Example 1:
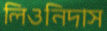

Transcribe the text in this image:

লিওনিদাস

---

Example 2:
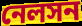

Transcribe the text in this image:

নেলসন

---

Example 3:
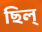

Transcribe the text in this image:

ছিল্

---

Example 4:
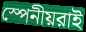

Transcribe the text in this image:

স্পেনীয়রাই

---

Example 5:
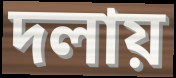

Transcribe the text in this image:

দলায়